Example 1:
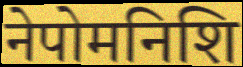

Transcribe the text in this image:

नेपोमनिशि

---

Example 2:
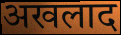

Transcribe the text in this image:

अखलाद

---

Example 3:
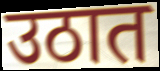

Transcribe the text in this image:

उठात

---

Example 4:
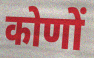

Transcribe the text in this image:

कोणों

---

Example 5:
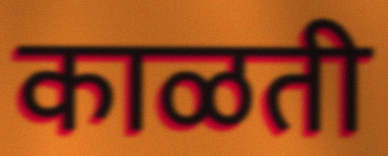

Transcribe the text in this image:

काळती